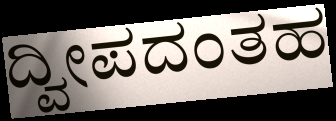
ದ್ವೀಪದಂತಹ